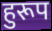
हुरूप